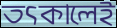
তৎকালেই